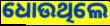
ଧୋଉଥିଲେ